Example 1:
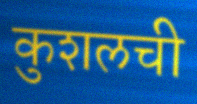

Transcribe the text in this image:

कुशलची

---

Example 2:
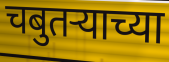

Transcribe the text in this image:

चबुतर्‍याच्या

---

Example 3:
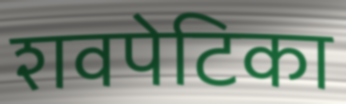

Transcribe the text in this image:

शवपेटिका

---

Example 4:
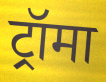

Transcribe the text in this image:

ट्रॉमा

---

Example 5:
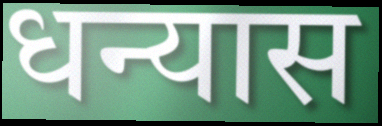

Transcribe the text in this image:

धन्यास